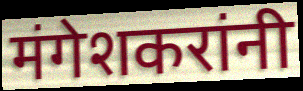
मंगेशकरांनी